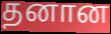
தனான